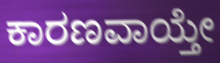
ಕಾರಣವಾಯ್ತೇ